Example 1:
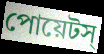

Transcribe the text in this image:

পোয়েটস্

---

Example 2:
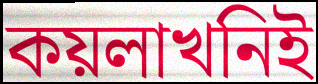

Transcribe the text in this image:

কয়লাখনিই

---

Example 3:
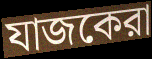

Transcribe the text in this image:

যাজকেরা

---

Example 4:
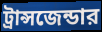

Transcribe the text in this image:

ট্রান্সজেন্ডার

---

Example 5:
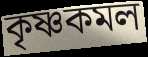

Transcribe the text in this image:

কৃষ্ণকমল